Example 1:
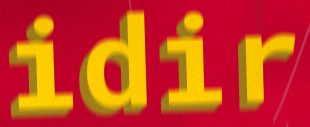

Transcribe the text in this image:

idir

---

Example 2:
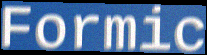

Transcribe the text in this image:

Formic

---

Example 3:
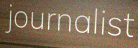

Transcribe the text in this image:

journalist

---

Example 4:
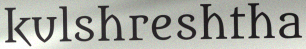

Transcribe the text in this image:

kulshreshtha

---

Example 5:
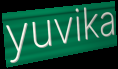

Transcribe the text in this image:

yuvika